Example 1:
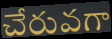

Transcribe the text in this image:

చేరువగా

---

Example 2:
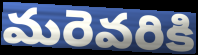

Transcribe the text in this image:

మరెవరికి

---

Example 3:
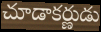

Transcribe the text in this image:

చూడాకర్ణుడు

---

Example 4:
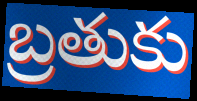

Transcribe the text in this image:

బ్రతుకు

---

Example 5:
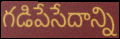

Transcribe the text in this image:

గడిపేసేదాన్ని